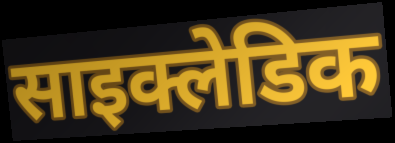
साइक्लेडिक